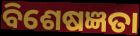
ବିଶେଷଜ୍ଞତା